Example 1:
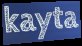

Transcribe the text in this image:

kayta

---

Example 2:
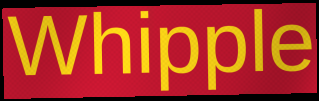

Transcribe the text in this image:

Whipple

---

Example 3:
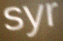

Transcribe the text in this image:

syr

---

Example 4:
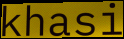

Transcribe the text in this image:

khasi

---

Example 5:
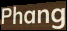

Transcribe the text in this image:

Phang